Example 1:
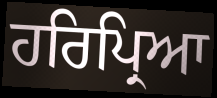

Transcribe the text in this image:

ਹਰਿਪ੍ਰਿਆ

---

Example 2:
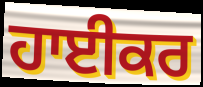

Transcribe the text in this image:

ਹਾਈਕਰ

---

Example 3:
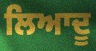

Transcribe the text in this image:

ਲਿਆਦੂ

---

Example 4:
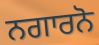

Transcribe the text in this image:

ਨਗਾਰਨੋ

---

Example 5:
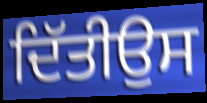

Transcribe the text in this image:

ਦਿੱਤੀਉਸ